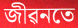
জীৱনতে